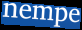
nempe